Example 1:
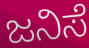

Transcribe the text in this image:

ಜನಿಸೆ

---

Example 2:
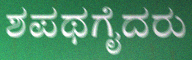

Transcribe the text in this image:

ಶಪಥಗೈದರು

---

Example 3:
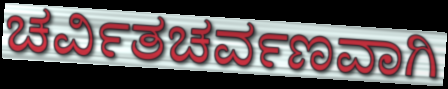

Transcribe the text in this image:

ಚರ್ವಿತಚರ್ವಣವಾಗಿ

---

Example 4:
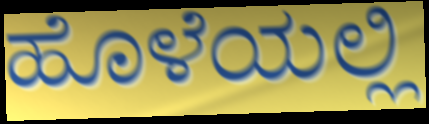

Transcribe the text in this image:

ಹೊಳೆಯಲ್ಲಿ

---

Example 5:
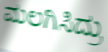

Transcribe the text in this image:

ಮಲಗಿಸಿದ್ರು